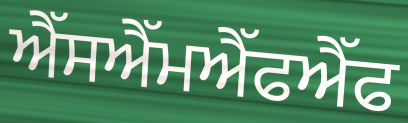
ਐੱਸਐੱਮਐੱਫਐੱਫ